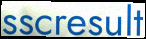
sscresult